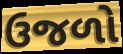
ઉજળો